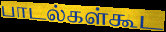
பாடல்கள்கூட